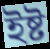
ইষ্ট